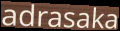
adrasaka